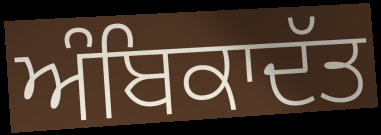
ਅੰਬਿਕਾਦੱਤ